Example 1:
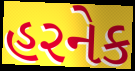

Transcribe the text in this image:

હરનેક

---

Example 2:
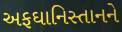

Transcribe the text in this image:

અફઘાનિસ્તાનને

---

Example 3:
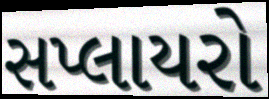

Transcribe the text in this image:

સપ્લાયરો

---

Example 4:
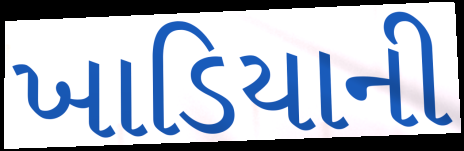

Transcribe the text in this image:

ખાડિયાની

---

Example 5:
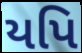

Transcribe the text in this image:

યપિ